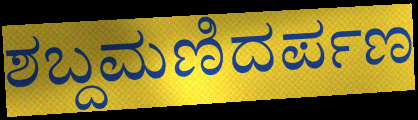
ಶಬ್ದಮಣಿದರ್ಪಣ